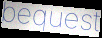
bequest